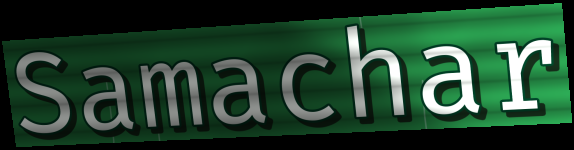
Samachar